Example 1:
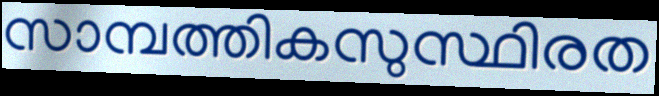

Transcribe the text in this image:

സാമ്പത്തികസുസ്ഥിരത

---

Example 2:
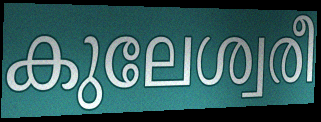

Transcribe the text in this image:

കുലേശ്വരീ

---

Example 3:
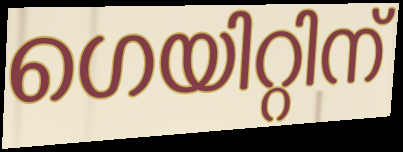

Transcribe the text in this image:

ഗെയിറ്റിന്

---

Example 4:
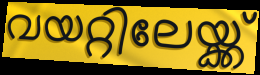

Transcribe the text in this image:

വയറ്റിലേയ്ക്ക്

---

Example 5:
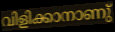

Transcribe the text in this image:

വിളിക്കാനാണു്